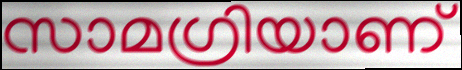
സാമഗ്രിയാണ്